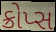
ક્રોપ્સ